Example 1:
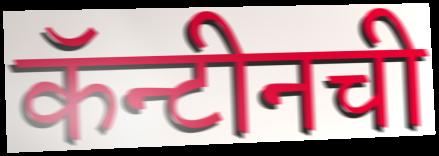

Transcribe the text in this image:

कॅन्टीनची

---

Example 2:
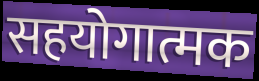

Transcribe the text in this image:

सहयोगात्मक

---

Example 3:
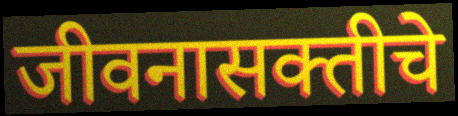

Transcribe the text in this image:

जीवनासक्तीचे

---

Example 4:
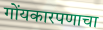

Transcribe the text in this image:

गोंयकारपणाचा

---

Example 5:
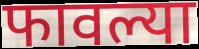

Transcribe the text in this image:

फावल्या